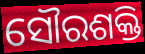
ସୌରଶକ୍ତି